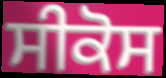
ਸੀਕੋਸ